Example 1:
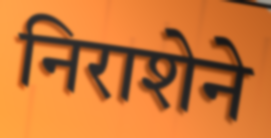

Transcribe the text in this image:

निराशेने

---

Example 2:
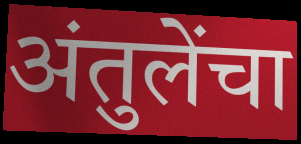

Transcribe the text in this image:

अंतुलेंचा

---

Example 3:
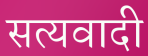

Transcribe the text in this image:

सत्यवादी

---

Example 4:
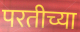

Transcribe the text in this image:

परतीच्या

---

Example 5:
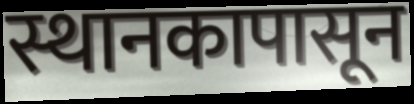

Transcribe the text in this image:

स्थानकापासून